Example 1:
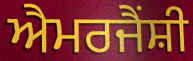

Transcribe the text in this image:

ਐਮਰਜੈਂਸ਼ੀ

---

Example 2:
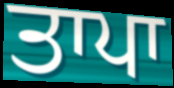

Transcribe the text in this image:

ਤਾਪਾ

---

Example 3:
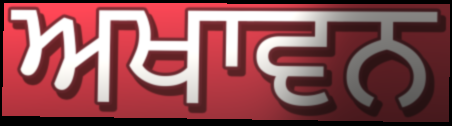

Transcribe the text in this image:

ਅਖਾਵਨ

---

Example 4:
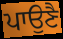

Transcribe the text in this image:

ਪਾਉਣੈ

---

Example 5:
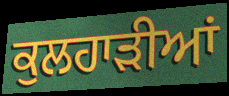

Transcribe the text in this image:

ਕੁਲਹਾੜੀਆਂ